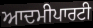
ਆਦਮੀਪਾਰਟੀ